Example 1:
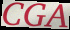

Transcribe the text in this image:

CGA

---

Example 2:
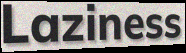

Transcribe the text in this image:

Laziness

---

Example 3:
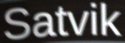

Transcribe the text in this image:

Satvik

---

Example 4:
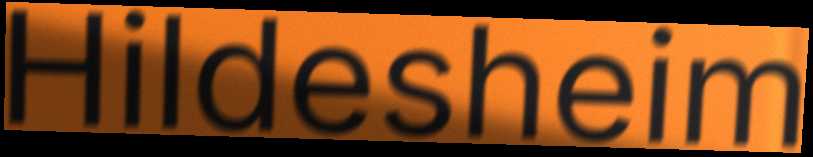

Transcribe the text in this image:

Hildesheim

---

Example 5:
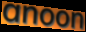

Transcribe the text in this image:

anoon